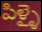
పిళ్ళై